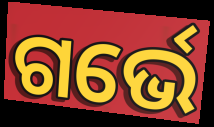
ଗର୍ଭେ